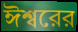
ঈশ্বরের